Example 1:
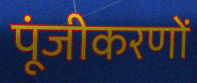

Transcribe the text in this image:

पूंजीकरणों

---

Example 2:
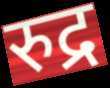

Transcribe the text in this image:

रुद्र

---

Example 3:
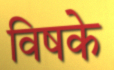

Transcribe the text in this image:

विषके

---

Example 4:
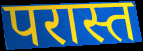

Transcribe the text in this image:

परास्त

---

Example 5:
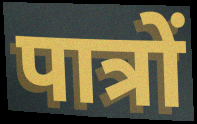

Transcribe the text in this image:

पात्रों